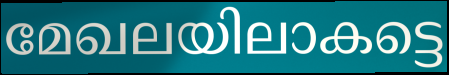
മേഖലയിലാകട്ടെ